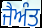
ਜੈਅੰਤ